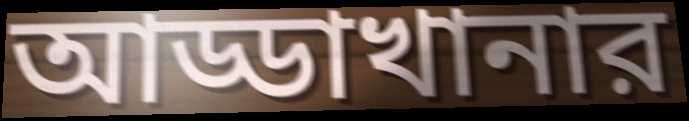
আড্ডাখানার